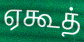
ஏகூத்